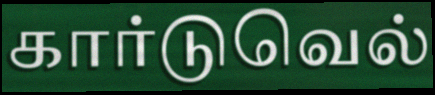
கார்டுவெல்